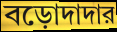
বড়োদাদার